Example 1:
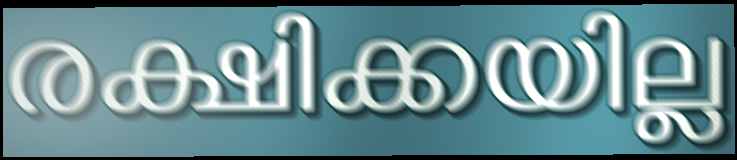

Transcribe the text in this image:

രക്ഷിക്കയില്ല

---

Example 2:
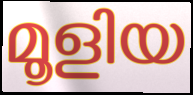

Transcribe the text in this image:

മൂളിയ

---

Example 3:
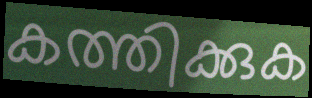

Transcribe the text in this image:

കത്തിക്കുക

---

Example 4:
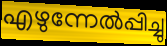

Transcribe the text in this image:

എഴുന്നേൽപ്പിച്ചു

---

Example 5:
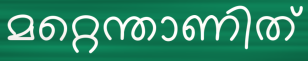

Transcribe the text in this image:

മറ്റെന്താണിത്